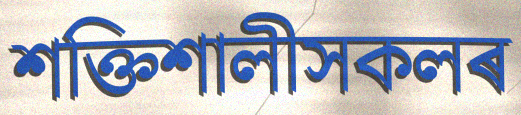
শক্তিশালীসকলৰ